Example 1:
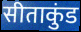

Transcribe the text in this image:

सीताकुंड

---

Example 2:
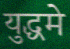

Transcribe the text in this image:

युद्धमे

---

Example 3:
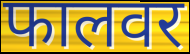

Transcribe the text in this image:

फालवर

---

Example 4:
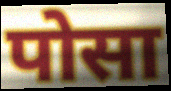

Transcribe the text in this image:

पोसा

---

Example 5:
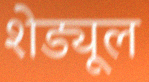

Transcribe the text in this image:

शेड्यूल